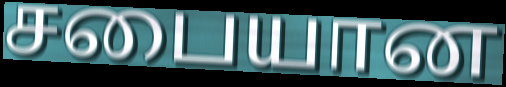
சபையான